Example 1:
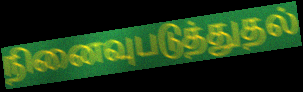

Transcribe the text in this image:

நினைவுபடுத்துதல்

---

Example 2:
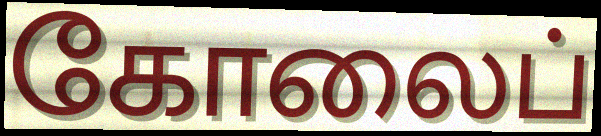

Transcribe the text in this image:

கோலைப்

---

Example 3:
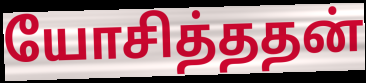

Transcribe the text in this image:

யோசித்ததன்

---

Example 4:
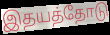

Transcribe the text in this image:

இதயத்தோடு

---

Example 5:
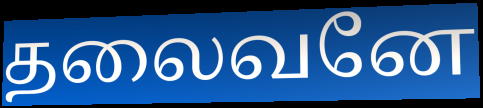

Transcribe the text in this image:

தலைவனே